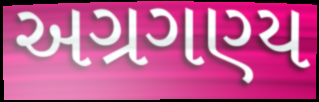
અગ્રગણ્ય